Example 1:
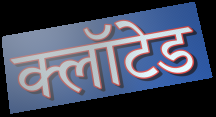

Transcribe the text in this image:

क्लॉटेड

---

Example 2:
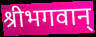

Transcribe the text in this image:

श्रीभगवान्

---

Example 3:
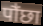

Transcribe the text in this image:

पौंछा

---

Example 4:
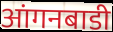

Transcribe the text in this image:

आंगनबाडी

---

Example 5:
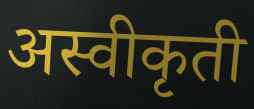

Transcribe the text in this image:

अस्वीकृती